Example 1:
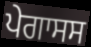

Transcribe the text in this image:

ਪੇਗਾਸਸ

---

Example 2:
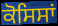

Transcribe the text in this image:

ਕੋਸਿਸਾਂ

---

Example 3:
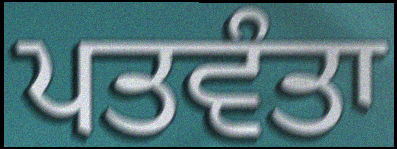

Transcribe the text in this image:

ਪਤਵੰਤਾ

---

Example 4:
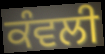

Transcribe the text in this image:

ਕੰਵਲੀ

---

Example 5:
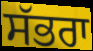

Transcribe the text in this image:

ਸੱਭਰਾ